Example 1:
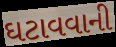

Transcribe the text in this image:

ઘટાવવાની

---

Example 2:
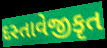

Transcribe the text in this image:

દસ્તાવેજીકૃત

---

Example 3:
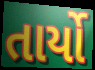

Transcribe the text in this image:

તાર્યો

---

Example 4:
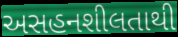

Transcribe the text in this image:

અસહનશીલતાથી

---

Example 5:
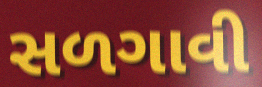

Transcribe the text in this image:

સળગાવી